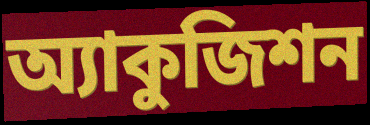
অ্যাকুজিশন